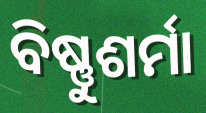
ବିଷ୍ଣୁଶର୍ମା